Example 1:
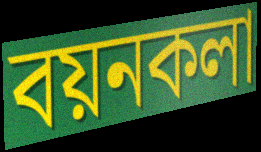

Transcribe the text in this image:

বয়নকলা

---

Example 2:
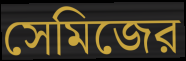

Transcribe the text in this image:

সেমিজের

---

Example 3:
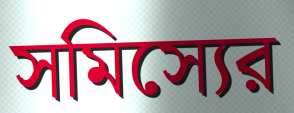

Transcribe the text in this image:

সমিস্যের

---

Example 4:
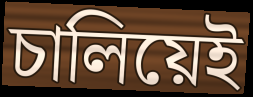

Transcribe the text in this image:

চালিয়েই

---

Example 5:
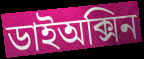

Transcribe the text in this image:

ডাইঅক্সিন